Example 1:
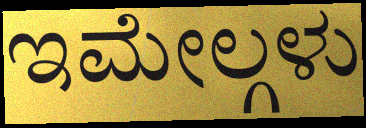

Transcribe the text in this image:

ಇಮೇಲ್ಗಳು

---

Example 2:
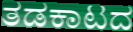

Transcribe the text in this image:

ತಡಕಾಟದ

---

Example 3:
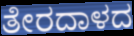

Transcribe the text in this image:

ತೇರದಾಳದ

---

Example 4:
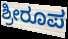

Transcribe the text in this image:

ಶ್ರೀರೂಪ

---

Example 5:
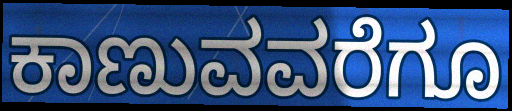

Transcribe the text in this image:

ಕಾಣುವವರೆಗೂ